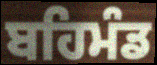
ਬਹਿਮੰਡ